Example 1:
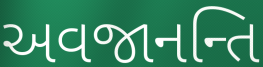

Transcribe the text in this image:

અવજાનન્તિ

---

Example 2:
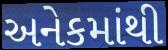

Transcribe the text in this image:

અનેકમાંથી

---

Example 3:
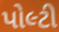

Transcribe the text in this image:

પોલ્ટી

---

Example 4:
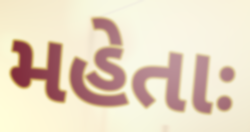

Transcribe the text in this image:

મહેતાઃ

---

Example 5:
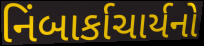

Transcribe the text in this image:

નિંબાર્કાચાર્યનો